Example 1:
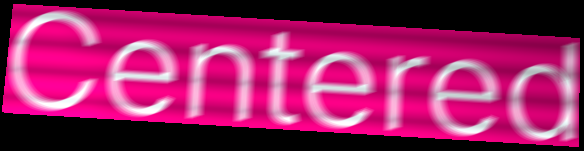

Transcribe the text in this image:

Centered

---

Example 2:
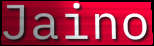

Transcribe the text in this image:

Jaino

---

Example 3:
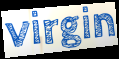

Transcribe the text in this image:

virgin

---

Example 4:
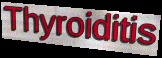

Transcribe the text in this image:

Thyroiditis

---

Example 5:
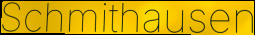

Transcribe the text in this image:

Schmithausen